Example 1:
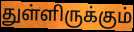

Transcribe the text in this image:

துள்ளிருக்கும்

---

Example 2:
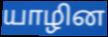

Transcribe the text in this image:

யாழின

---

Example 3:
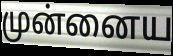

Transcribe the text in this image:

முன்னைய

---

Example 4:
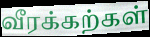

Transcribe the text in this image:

வீரக்கற்கள்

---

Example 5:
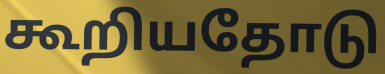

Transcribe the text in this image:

கூறியதோடு